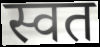
स्वत